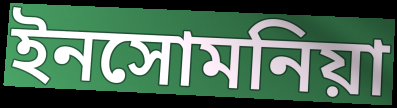
ইনসোমনিয়া